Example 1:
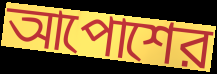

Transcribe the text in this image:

আপোশের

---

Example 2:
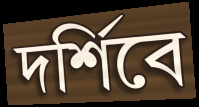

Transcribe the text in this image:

দর্শিবে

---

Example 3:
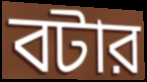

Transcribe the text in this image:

বটার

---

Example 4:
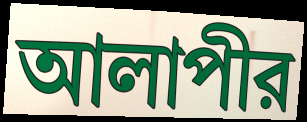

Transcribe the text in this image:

আলাপীর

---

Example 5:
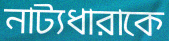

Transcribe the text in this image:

নাট্যধারাকে